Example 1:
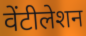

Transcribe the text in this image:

वेंटीलेशन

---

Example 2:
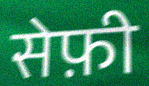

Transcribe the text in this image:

सेफ़ी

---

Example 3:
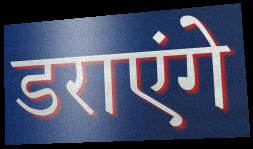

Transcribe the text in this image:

डराएंगे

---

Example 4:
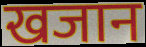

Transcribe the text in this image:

खजान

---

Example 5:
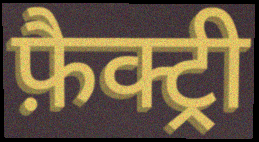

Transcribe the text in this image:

फ़ैक्ट्री